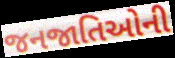
જનજાતિઓની